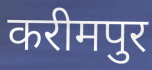
करीमपुर